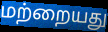
மற்றையது